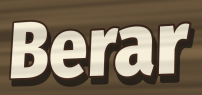
Berar